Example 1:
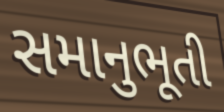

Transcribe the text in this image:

સમાનુભૂતી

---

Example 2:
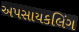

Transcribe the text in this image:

અપસાયકલિંગ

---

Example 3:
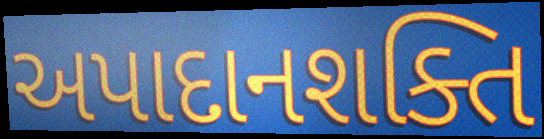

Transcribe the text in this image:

અપાદાનશક્તિ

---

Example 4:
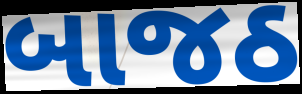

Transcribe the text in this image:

બાજઠ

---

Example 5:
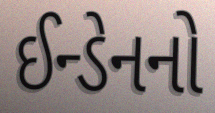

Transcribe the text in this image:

ઈન્ડેનનો